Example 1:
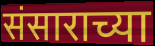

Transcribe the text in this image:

संसाराच्या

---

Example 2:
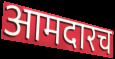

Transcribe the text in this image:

आमदारच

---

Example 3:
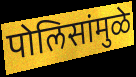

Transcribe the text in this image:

पोलिसांमुळे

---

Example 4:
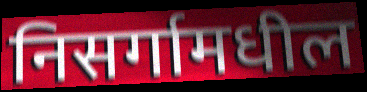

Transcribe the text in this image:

निसर्गामधील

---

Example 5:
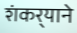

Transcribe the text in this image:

शंकर्‍याने